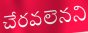
చేరవలెనని